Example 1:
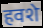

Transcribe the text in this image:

हवशे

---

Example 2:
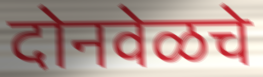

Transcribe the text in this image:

दोनवेळचे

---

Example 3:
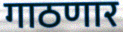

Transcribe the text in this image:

गाठणार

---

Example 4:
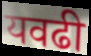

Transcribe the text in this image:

यवढी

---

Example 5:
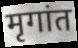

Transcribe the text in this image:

मृगांत